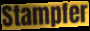
Stampfer